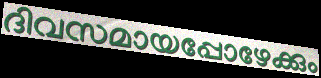
ദിവസമായപ്പോഴേക്കും